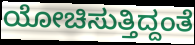
ಯೋಚಿಸುತ್ತಿದ್ದಂತೆ